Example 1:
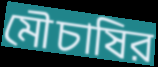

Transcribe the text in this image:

মৌচাষির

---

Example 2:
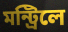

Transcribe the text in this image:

মন্ট্রিলে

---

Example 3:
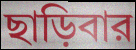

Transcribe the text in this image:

ছাড়িবার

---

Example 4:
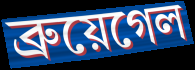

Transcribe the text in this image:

ব্রুয়েগেল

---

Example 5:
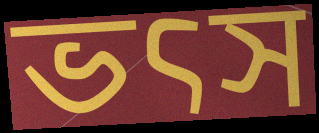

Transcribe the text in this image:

ভৎস